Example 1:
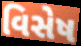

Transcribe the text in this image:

વિસેષ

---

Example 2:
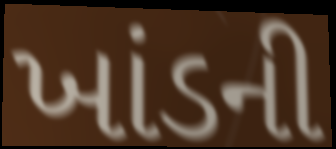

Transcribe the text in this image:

ખાંડની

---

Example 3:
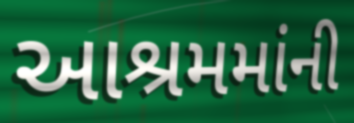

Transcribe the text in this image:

આશ્રમમાંની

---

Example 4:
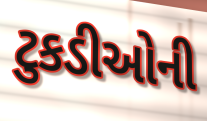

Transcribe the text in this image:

ટુકડીઓની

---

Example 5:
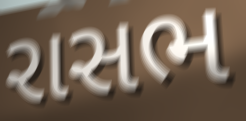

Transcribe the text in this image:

રાસભ